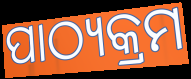
ପାଠ୍ୟକ୍ରମ